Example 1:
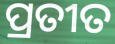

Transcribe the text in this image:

ପ୍ରତୀତ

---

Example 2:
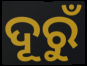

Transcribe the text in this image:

ଦୂରୁଁ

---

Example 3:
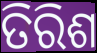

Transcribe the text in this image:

ତିରିଶ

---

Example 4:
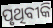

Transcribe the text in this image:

ପୃଥିବୀକି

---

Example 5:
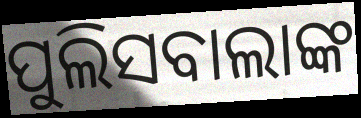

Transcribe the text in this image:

ପୁଲିସବାଲାଙ୍କ